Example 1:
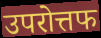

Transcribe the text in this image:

उपरोत्तफ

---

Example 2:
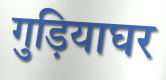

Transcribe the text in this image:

गुड़ियाघर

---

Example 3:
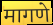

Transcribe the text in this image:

मागणे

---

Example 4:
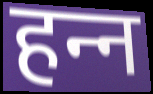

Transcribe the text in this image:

हन्न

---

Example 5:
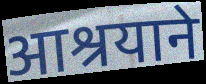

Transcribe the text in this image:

आश्रयाने